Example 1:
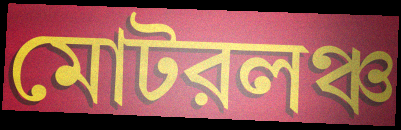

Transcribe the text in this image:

মোটরলঞ্চ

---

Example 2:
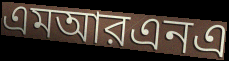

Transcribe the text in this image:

এমআরএনএ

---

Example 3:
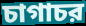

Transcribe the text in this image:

চাগাচর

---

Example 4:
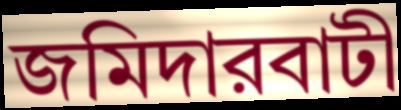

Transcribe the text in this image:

জমিদারবাটী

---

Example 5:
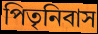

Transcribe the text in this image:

পিতৃনিবাস